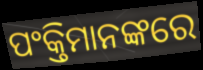
ପଂକ୍ତିମାନଙ୍କରେ